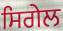
ਸਿਗੇਲ